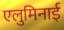
एलुमिनाई